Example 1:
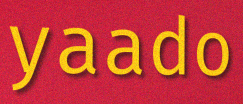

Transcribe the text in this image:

yaado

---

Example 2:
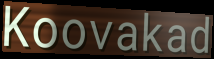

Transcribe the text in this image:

Koovakad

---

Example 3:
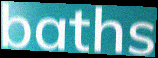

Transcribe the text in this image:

baths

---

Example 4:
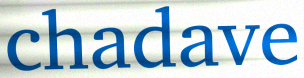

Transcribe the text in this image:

chadave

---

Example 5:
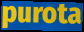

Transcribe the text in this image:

purota